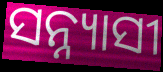
ସନ୍ନ୍ୟାସୀ